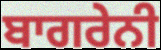
ਬਾਗਰੇਨੀ